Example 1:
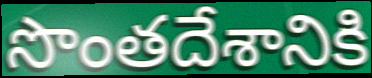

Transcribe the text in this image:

సొంతదేశానికి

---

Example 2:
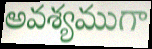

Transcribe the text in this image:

అవశ్యముగా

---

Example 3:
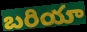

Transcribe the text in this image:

బరియా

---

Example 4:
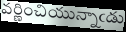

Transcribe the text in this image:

వర్ణించియున్నాఁడు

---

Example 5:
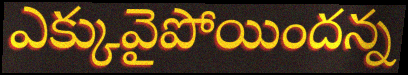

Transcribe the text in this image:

ఎక్కువైపోయిందన్న